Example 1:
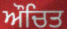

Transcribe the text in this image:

ਔਚਿਤ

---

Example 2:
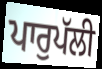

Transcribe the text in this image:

ਪਾਰੁਪੱਲੀ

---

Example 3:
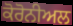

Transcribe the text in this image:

ਕੋਰੋਨੀਅਲ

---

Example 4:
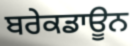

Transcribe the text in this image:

ਬਰੇਕਡਾਊਨ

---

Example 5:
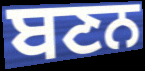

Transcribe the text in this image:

ਬਣਨ